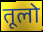
तूलो